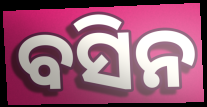
ବସିନ